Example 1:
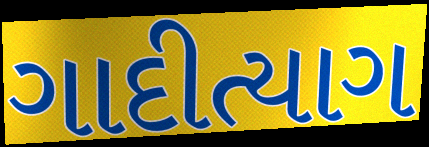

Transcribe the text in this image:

ગાદીત્યાગ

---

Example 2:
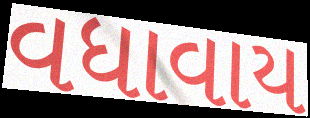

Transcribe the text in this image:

વધાવાય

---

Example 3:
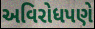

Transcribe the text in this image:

અવિરોધપણે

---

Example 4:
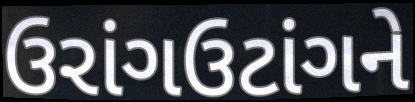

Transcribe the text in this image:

ઉરાંગઉટાંગને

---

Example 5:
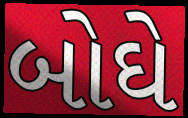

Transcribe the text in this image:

બોઘે